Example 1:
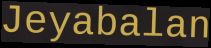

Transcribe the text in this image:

Jeyabalan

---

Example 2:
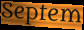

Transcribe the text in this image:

Septem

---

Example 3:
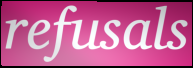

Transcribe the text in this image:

refusals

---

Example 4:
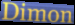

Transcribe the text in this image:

Dimon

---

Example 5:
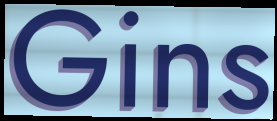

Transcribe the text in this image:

Gins